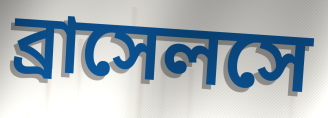
ব্রাসেলসে